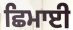
ਛਿਮਾਈ